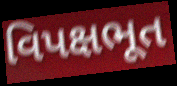
વિપક્ષભૂત